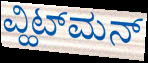
ವ್ಹಿಟ್‌ಮನ್